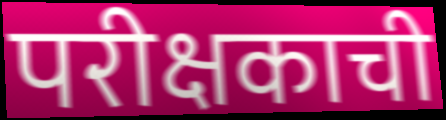
परीक्षकाची